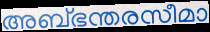
അബ്ഭന്തരസീമാ